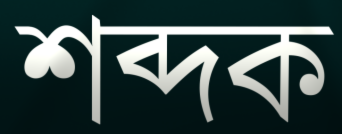
শব্দক